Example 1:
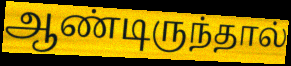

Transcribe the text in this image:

ஆண்டிருந்தால்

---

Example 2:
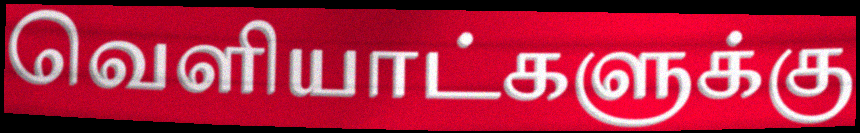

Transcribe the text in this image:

வெளியாட்களுக்கு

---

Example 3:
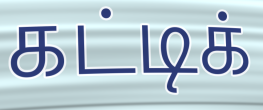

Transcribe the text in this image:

கட்டிக்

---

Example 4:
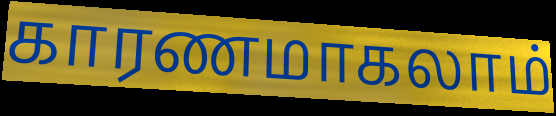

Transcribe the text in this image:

காரணமாகலாம்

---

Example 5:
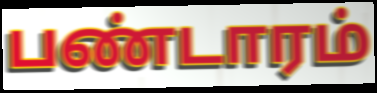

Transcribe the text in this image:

பண்டாரம்